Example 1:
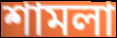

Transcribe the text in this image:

শামলা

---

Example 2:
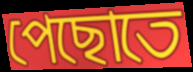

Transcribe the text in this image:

পেছোতে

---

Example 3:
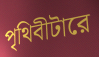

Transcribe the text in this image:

পৃথিবীটারে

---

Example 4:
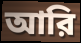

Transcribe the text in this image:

আরি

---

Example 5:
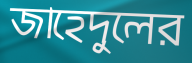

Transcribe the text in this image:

জাহেদুলের